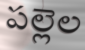
పల్లెల